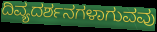
ದಿವ್ಯದರ್ಶನಗಳಾಗುವವು